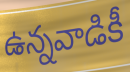
ఉన్నవాడికీ